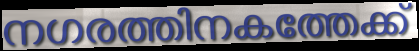
നഗരത്തിനകത്തേക്ക്